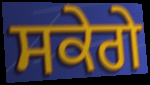
ਸਕੇਗੇ